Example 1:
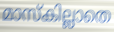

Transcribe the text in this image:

മാസ്കില്ലാതെ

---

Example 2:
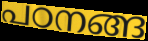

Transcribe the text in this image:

പഠനങ്ങ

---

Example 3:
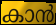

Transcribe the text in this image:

കാൻ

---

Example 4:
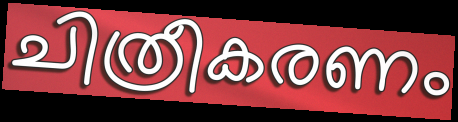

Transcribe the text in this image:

ചിത്രീകരണം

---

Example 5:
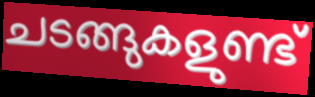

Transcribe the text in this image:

ചടങ്ങുകളുണ്ട്